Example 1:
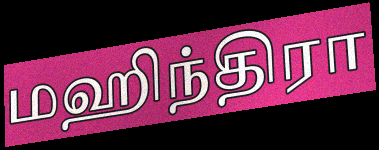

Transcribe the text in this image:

மஹிந்திரா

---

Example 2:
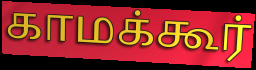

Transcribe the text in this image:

காமக்கூர்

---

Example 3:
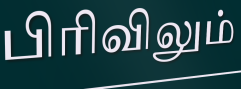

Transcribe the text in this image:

பிரிவிலும்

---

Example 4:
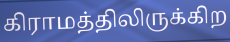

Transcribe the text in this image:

கிராமத்திலிருக்கிற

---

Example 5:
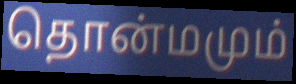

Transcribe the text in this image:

தொன்மமும்